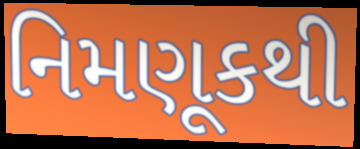
નિમણૂકથી